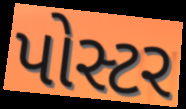
પોસ્ટર